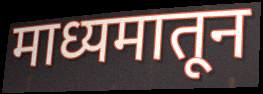
माध्यमातून